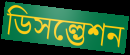
ডিসল্ভেশন